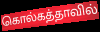
கொல்கத்தாவில்